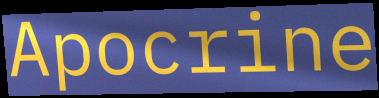
Apocrine